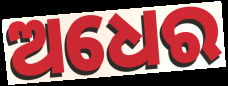
ଅଧେର